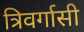
त्रिवर्गासी